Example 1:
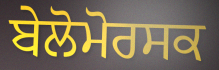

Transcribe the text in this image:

ਬੇਲੋਮੋਰਸਕ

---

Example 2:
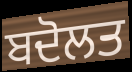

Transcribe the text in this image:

ਬਦੋਲਤ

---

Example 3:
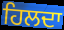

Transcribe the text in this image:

ਹਿਲਦਾ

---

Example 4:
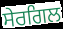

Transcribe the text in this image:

ਸੇਰਗਿਲ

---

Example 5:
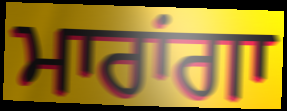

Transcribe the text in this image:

ਮਾਰਾਂਗਾ